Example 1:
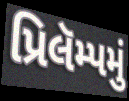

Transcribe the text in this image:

પ્રિલૅમ્પમું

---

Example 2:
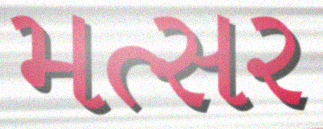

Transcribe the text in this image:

મત્સર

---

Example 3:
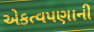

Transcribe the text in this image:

એકત્વપણાની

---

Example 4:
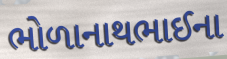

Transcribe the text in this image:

ભોળાનાથભાઈના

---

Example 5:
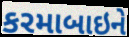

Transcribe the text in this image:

કરમાબાઇને